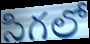
సిగలో